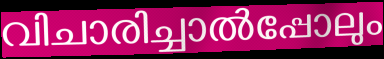
വിചാരിച്ചാൽപ്പോലും